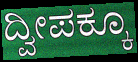
ದ್ವೀಪಕ್ಕೂ